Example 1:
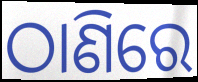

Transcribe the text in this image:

ଠାଣିରେ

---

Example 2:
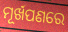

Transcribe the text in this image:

ମୂର୍ଖପଣରେ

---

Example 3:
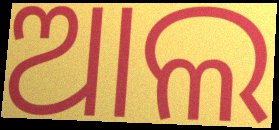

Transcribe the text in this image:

ଆଲ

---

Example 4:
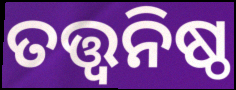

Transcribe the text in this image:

ତତ୍ତ୍ୱନିଷ୍ଠ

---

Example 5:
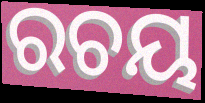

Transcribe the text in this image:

ରଚୟ